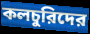
কলচুরিদের